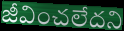
జీవించలేదని